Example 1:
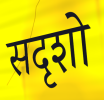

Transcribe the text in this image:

सदृशो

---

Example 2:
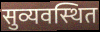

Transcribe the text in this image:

सुव्यवस्थित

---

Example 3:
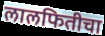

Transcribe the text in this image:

लालफितीचा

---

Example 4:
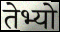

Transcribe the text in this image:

तेभ्यो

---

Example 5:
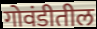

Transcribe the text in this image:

गोवंडीतील